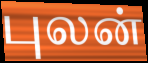
புலன்